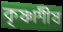
কৃষ্ণাশীষ